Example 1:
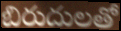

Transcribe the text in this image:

బిరుదులతో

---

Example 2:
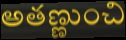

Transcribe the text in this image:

అతణ్ణుంచి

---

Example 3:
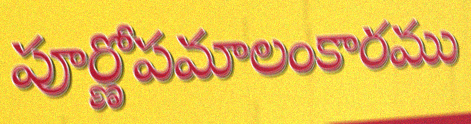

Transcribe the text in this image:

పూర్ణోపమాలంకారము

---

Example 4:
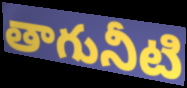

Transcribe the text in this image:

తాగునీటి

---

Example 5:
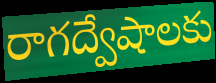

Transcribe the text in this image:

రాగద్వేషాలకు